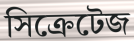
সিক্রেটেজ